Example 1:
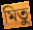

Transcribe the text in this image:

মিতু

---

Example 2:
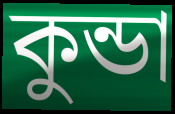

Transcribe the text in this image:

কুন্ডা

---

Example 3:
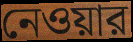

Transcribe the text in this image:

নেওয়ার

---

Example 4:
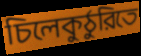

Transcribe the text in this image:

চিলেকুঠুরিতে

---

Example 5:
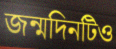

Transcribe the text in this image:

জন্মদিনটিও